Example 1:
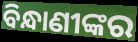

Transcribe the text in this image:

ବିନ୍ଧାଣୀଙ୍କର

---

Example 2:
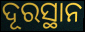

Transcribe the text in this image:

ଦୂରସ୍ଥାନ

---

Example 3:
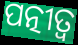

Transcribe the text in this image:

ପତ୍ନୀତ୍ୱ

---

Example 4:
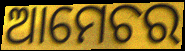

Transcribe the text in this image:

ଆମେଚର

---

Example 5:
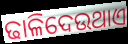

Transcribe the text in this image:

ଢାଳିଦେଉଥାଏ